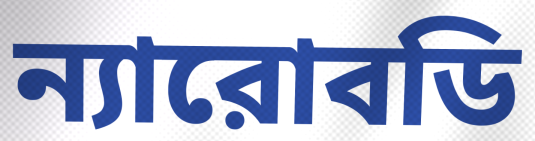
ন্যারোবডি